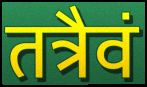
तत्रैवं